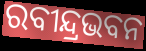
ରବୀନ୍ଦ୍ରଭବନ